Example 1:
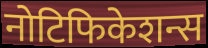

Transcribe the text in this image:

नोटिफिकेशन्स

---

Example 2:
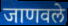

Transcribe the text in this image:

जाणवले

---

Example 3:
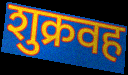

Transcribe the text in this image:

शुक्रवह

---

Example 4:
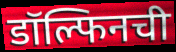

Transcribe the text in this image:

डॉल्फिनची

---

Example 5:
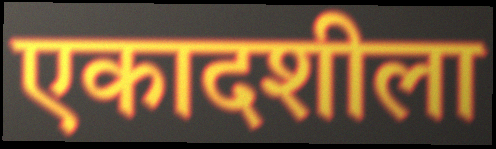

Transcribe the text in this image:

एकादशीला